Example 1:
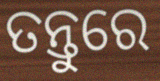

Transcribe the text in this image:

ତନ୍ତୁରେ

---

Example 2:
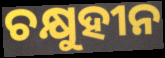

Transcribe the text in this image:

ଚକ୍ଷୁହୀନ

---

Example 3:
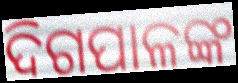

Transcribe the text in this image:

ଦିଗପାଳଙ୍କ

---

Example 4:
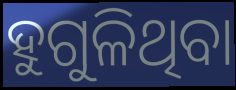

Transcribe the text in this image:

ହୁଗୁଳିଥିବା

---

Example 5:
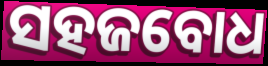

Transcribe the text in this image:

ସହଜବୋଧ